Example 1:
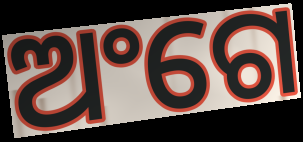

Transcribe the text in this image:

ଅଂଗେ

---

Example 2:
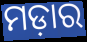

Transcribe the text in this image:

ମଡ଼ାର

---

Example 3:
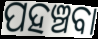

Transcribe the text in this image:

ପହଞ୍ଚବା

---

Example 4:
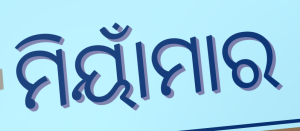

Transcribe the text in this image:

ମିୟାଁମାର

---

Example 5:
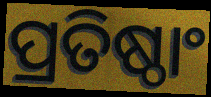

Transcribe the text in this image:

ପ୍ରତିଷ୍ଠାଂ